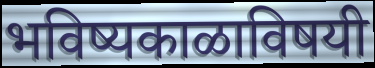
भविष्यकाळाविषयी